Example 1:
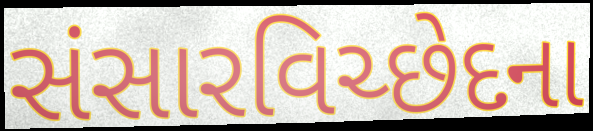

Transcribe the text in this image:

સંસારવિચ્છેદના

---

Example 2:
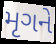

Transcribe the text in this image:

મૃગને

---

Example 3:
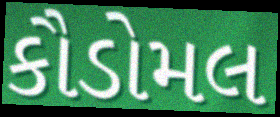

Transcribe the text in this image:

કૌડોમલ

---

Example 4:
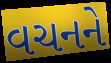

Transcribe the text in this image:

વચનને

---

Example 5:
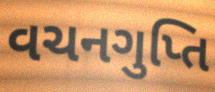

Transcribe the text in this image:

વચનગુપ્તિ